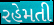
રહેમતી